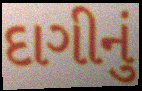
દાગીનું